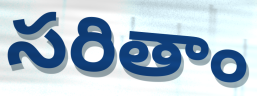
సరితాం